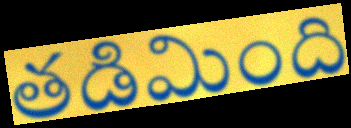
తడిమింది